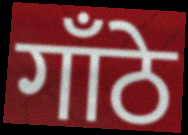
गाँठे